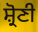
ਸ਼੍ਰੋਣੀ